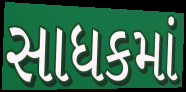
સાધકમાં